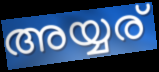
അയ്യര്